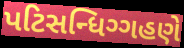
પટિસન્ધિગ્ગહણે